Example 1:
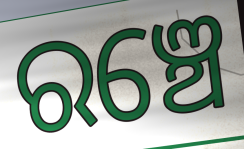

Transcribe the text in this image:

ରଞ୍ଚେ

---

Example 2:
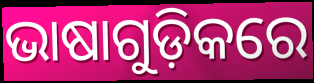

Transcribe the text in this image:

ଭାଷାଗୁଡ଼ିକରେ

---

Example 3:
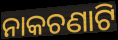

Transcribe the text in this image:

ନାକଚଣାଟି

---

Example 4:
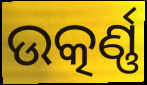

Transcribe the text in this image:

ଉତ୍କର୍ଣ୍ଣ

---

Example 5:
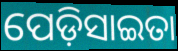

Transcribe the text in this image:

ପେଡ଼ିସାଇତା